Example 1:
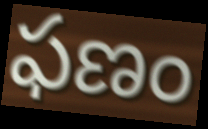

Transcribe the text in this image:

ఫణం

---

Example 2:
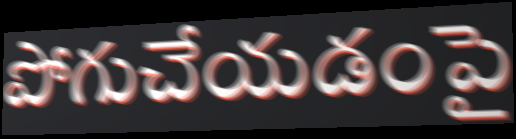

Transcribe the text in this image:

పోగుచేయడంపై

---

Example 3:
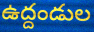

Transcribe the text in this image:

ఉద్దండుల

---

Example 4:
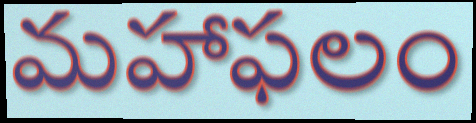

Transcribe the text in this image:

మహాఫలం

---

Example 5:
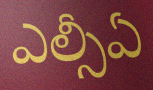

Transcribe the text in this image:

ఎల్సీఏ